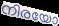
നിരയോ